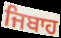
ਜਿਬਾਹ